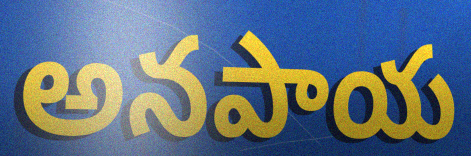
అనపాయ